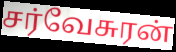
சர்வேசுரன்